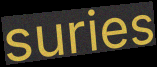
suries